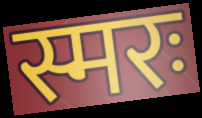
स्मरः